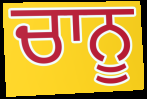
ਚਾਨੂ